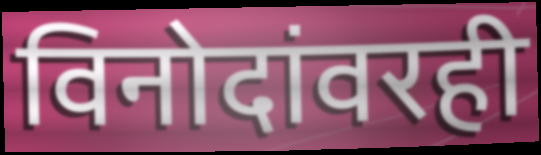
विनोदांवरही